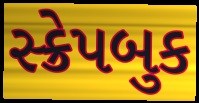
સ્ક્રેપબુક